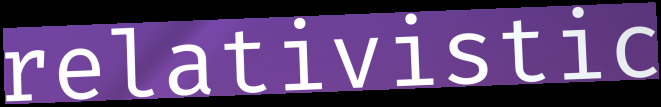
relativistic